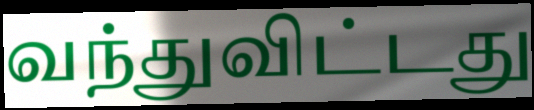
வந்துவிட்டது